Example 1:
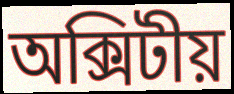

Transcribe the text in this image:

অক্সিটীয়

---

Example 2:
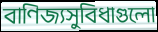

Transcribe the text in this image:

বাণিজ্যসুবিধাগুলো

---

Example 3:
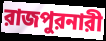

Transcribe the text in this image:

রাজপুরনারী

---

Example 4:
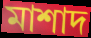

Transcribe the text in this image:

মাশাদ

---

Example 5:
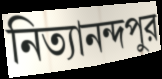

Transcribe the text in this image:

নিত্যানন্দপুর